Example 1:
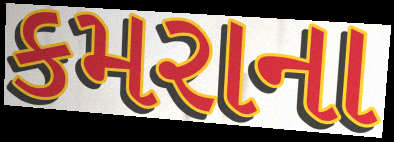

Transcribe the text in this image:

કમરાના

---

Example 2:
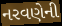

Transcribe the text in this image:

નરવણેની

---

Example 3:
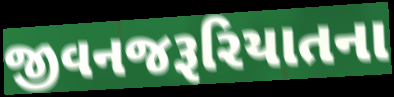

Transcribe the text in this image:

જીવનજરૂરિયાતના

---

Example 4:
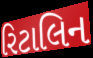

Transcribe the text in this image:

રિટાલિન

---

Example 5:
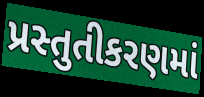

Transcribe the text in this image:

પ્રસ્તુતીકરણમાં